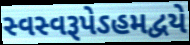
સ્વસ્વરૂપેઽહમદ્વયે